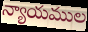
న్యాయముల